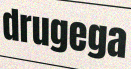
drugega